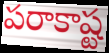
పరాకాష్ట